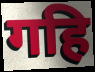
गहि